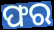
ଫର